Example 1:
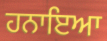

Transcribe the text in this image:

ਹਨਾਇਆ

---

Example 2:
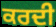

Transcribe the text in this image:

ਕਰਦੀ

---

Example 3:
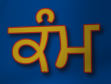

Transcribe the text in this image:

ਕੰਮ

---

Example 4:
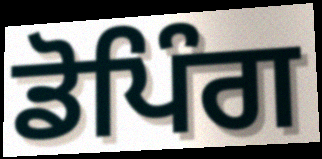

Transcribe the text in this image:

ਡੋਪਿੰਗ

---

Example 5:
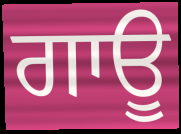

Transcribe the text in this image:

ਗਾਊ